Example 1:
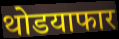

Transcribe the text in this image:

थोडयाफार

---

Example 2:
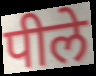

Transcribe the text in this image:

पीले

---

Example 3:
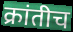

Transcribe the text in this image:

क्रांतीच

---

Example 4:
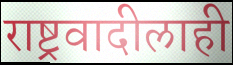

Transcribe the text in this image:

राष्ट्रवादीलाही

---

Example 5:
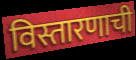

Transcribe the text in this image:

विस्तारणाची